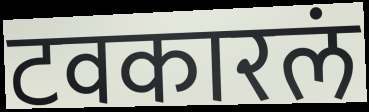
टवकारलं